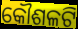
କୌଶଳଟି